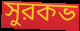
সুরকভ